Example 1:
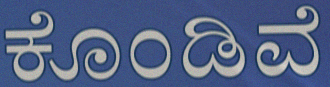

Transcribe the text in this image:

ಕೊಂಡಿವೆ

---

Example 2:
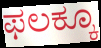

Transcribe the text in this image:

ಫಲಕ್ಕೂ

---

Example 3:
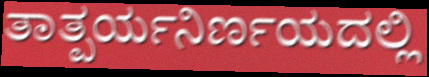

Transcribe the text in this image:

ತಾತ್ಪರ್ಯನಿರ್ಣಯದಲ್ಲಿ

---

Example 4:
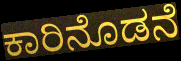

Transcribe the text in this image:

ಕಾರಿನೊಡನೆ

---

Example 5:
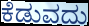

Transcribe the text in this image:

ಕೆಡುವದು